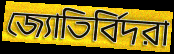
জ্যোতির্বিদরা